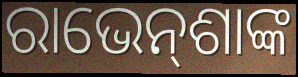
ରାଭେନ୍‌ଶାଙ୍କ